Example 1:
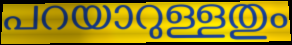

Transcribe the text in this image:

പറയാറുള്ളതും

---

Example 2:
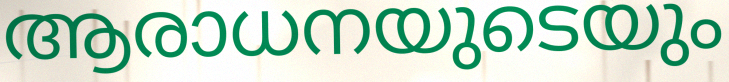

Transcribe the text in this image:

ആരാധനയുടെയും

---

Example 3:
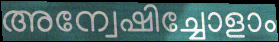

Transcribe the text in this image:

അന്വേഷിച്ചോളാം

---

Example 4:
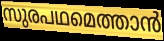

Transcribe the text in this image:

സുരപഥമെത്താൻ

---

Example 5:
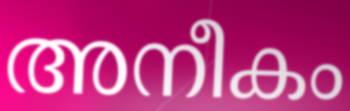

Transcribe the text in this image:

അനീകം